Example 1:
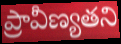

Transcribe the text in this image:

ప్రావీణ్యతని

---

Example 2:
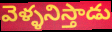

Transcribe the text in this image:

వెళ్ళనిస్తాడు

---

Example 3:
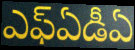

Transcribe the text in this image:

ఎఫ్ఏడీఏ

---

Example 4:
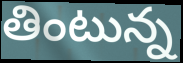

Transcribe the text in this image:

తింటున్న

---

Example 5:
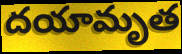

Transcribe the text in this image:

దయామృత